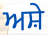
ਅਸ਼ੇ